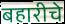
बहारीचे